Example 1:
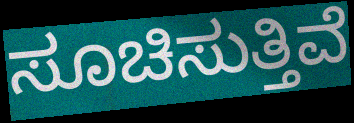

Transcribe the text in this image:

ಸೂಚಿಸುತ್ತಿವೆ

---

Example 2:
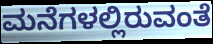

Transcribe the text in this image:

ಮನೆಗಳಲ್ಲಿರುವಂತೆ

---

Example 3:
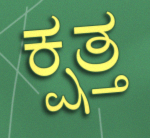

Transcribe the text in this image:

ಕ್ಷತ್ತ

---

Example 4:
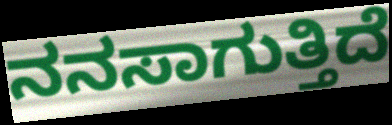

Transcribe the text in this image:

ನನಸಾಗುತ್ತಿದೆ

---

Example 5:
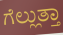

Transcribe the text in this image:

ಗೆಲ್ಲುತ್ತಾ